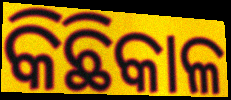
କିଛିକାଳ